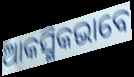
ଆକସ୍ମିକଭାବେ